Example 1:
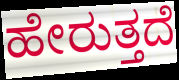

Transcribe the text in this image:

ಹೇರುತ್ತದೆ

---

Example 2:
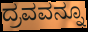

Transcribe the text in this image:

ದ್ರವವನ್ನೂ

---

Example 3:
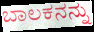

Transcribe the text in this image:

ಬಾಲಕನನ್ನು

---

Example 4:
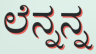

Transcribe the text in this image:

ಲೆನ್ನನ್ನ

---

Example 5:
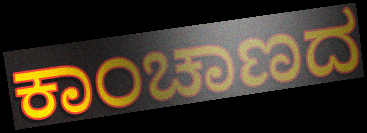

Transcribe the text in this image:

ಕಾಂಚಾಣದ